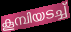
കൂമ്പിയടച്ച്